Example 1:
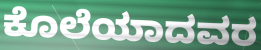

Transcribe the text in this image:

ಕೊಲೆಯಾದವರ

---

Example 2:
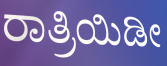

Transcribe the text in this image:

ರಾತ್ರಿಯಿಡೀ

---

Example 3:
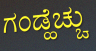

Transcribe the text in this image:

ಗಂಡ್ಹೆಚ್ಚು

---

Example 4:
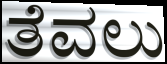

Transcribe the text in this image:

ತೆವಲು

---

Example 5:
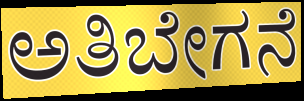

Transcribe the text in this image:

ಅತಿಬೇಗನೆ